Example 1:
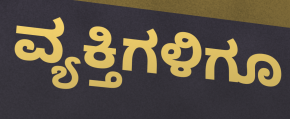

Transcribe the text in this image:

ವ್ಯಕ್ತಿಗಳಿಗೂ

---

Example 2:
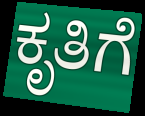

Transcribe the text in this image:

ಕೃತಿಗೆ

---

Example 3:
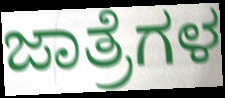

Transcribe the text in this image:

ಜಾತ್ರೆಗಳ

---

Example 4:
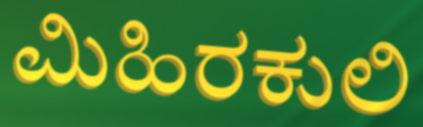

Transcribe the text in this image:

ಮಿಹಿರಕುಲಿ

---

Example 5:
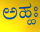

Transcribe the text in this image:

ಅಹ್ಹಃ